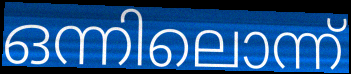
ഒന്നിലൊന്ന്